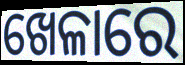
ଖେଳାରେ